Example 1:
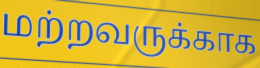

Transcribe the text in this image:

மற்றவருக்காக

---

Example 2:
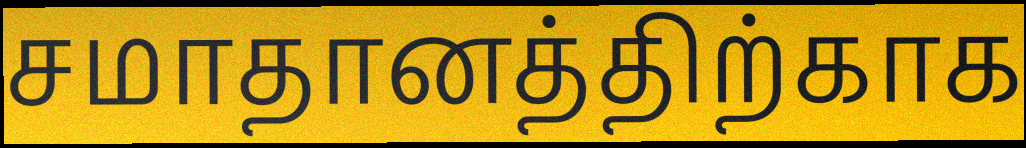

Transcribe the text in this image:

சமாதானத்திற்காக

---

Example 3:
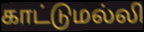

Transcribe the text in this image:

காட்டுமல்லி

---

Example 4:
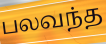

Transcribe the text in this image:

பலவந்த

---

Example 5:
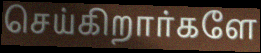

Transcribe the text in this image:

செய்கிறார்களே